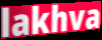
lakhva